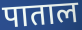
पाताल